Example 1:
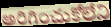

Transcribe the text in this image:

అరిగించుకోలేని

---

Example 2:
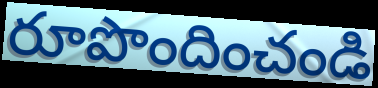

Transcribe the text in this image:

రూపొందించండి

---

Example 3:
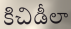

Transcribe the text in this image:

కిచిడీలా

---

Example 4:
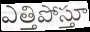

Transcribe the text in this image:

ఎత్తిపోస్తూ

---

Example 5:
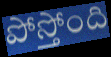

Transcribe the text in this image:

పోస్తోంది